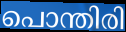
പൊന്തിരി